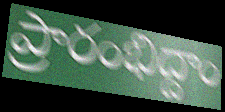
ప్రారంభిద్దాం